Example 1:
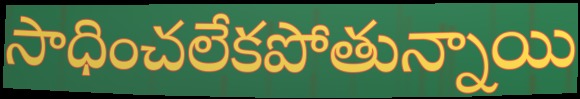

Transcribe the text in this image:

సాధించలేకపోతున్నాయి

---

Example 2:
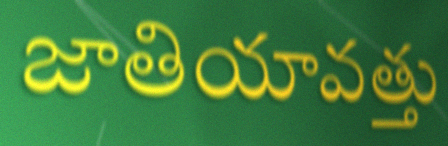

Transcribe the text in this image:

జాతియావత్తు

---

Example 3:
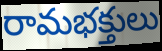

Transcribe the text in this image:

రామభక్తులు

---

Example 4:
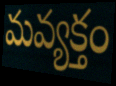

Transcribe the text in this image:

మవ్యక్తం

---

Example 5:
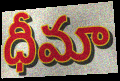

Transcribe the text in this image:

ధీమా